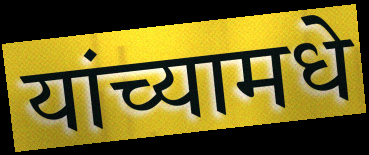
यांच्यामधे